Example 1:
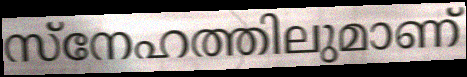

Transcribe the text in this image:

സ്നേഹത്തിലുമാണ്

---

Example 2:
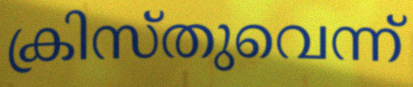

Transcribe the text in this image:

ക്രിസ്തുവെന്ന്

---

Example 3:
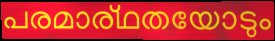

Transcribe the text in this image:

പരമാര്ഥതയോടും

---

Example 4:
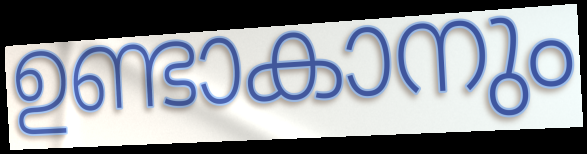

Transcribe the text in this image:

ഉണ്ടാകാനും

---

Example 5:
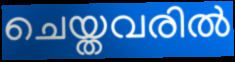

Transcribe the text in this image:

ചെയ്തവരിൽ